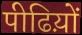
पीढिय़ों